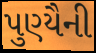
પુણ્યૈની